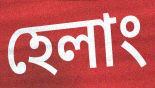
হেলাং